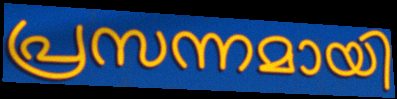
പ്രസന്നമായി